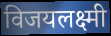
विजयलक्ष्मी